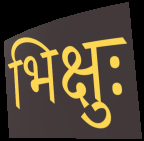
भिक्षुः